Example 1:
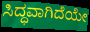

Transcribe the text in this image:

ಸಿದ್ಧವಾಗಿದೆಯೇ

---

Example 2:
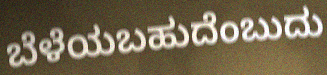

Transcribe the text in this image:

ಬೆಳೆಯಬಹುದೆಂಬುದು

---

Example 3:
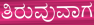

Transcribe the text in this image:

ತಿರುವುವಾಗ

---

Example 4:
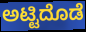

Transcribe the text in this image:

ಅಟ್ಟಿದೊಡೆ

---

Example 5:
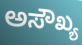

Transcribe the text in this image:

ಅಸೌಖ್ಯ